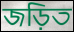
জড়িত